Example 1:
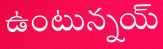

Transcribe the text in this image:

ఉంటున్నయ్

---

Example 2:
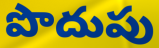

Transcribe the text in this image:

పొదుపు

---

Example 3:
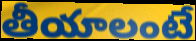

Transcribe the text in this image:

తీయాలంటే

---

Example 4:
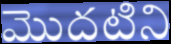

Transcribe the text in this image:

మొదటిని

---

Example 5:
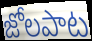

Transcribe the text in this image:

జోలపాట